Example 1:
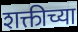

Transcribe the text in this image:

शक्तीच्या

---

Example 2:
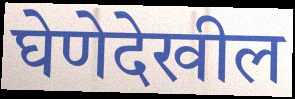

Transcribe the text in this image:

घेणेदेखील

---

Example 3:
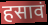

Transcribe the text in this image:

हसावं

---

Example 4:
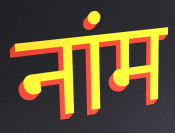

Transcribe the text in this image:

नांम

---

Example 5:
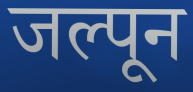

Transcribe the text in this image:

जल्पून